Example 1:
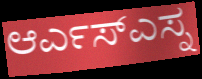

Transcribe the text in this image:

ಆರ್ಎಸ್ಎಸ್ನ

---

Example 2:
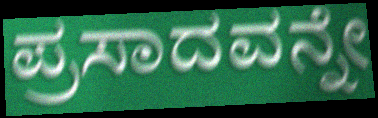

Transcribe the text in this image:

ಪ್ರಸಾದವನ್ನೇ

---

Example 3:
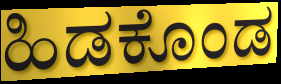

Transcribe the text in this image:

ಹಿಡಕೊಂಡ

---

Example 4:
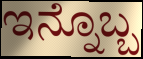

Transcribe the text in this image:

ಇನ್ನೊಬ್ಬ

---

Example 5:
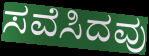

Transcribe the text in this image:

ಸವೆಸಿದವು